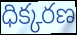
ధిక్కరణ